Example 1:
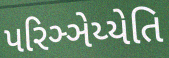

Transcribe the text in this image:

પરિઞ્ઞેય્યેતિ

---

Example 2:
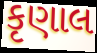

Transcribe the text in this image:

કૃણાલ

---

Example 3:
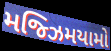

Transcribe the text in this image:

મજ્ઝિમયામો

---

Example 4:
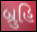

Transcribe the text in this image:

બ્રુહિ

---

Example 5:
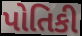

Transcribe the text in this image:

પોતિકી